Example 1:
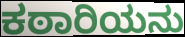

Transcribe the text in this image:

ಕಠಾರಿಯನು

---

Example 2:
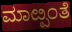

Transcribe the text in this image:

ಮಾೞ್ಪಂತೆ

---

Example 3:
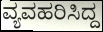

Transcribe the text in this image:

ವ್ಯವಹರಿಸಿದ್ದ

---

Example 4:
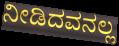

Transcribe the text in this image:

ನೀಡಿದವನಲ್ಲ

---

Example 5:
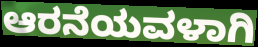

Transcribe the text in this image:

ಆರನೆಯವಳಾಗಿ